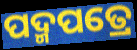
ପଦ୍ମପତ୍ରେ